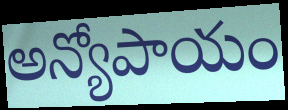
అన్యోపాయం